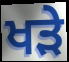
ਖਡ਼ੇ